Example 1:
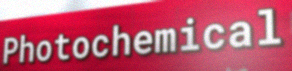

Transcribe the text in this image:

Photochemical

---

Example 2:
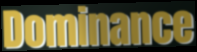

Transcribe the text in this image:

Dominance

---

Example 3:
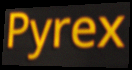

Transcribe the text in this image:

Pyrex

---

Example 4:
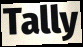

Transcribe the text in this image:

Tally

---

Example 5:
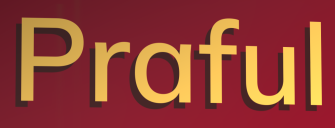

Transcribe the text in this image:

Praful